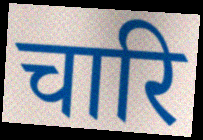
चारि